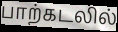
பாற்கடலில்